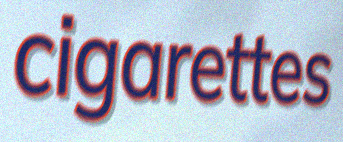
cigarettes